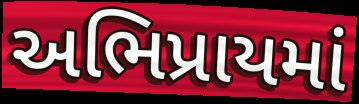
અભિપ્રાયમાં